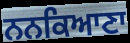
ਨਨਕਿਆਣਾ